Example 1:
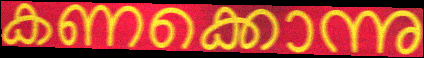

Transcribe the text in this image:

കണക്കൊന്നു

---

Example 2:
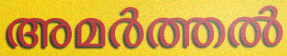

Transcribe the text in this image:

അമർത്തൽ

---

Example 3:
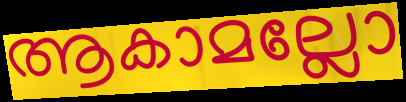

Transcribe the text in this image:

ആകാമല്ലോ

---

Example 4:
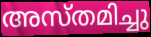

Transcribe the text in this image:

അസ്തമിച്ചു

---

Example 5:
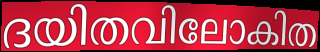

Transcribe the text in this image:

ദയിതവിലോകിത